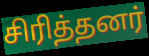
சிரித்தனர்